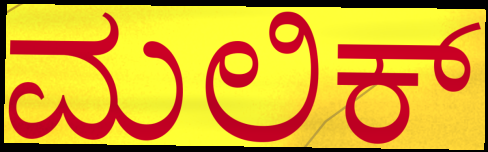
ಮಲಿಕ್